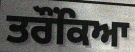
ਤਰੌਂਕਿਆ